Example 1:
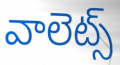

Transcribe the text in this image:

వాలెట్స్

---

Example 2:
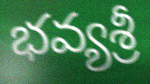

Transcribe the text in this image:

భవ్యశ్రీ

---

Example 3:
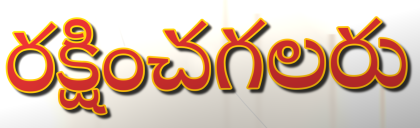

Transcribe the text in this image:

రక్షించగలరు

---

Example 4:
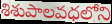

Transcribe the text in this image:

శిశుపాలవధలోని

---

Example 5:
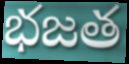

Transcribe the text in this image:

భజత